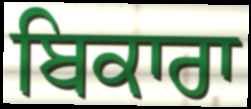
ਬਿਕਾਰਾ